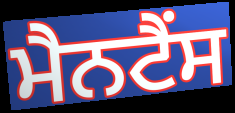
ਮੈਨਟੈਂਸ